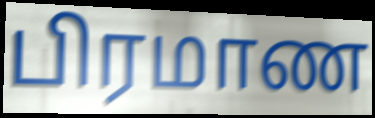
பிரமாண